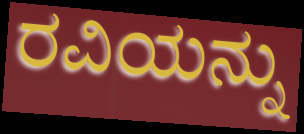
ರವಿಯನ್ನು